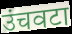
उंचवटा